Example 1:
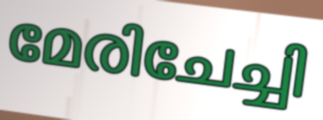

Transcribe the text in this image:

മേരിചേച്ചി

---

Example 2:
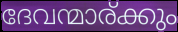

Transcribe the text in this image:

ദേവന്മാര്ക്കും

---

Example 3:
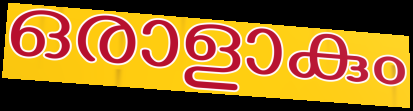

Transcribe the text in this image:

ഒരാളാകും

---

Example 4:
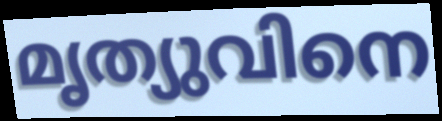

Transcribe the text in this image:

മൃത്യുവിനെ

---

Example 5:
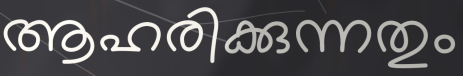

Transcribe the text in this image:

ആഹരിക്കുന്നതും